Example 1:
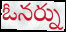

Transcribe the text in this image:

ఓనర్ను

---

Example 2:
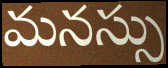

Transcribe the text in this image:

మనస్సు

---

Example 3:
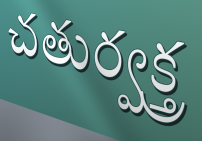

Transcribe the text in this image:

చతుర్వక్త్ర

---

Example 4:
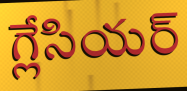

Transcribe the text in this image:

గ్లేసియర్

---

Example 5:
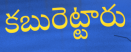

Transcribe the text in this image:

కబురెట్టారు